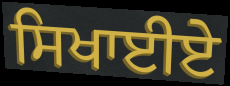
ਸਿਖਾਈਏ